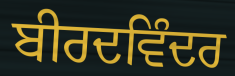
ਬੀਰਦਵਿੰਦਰ